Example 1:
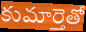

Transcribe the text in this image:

కుమార్తెతో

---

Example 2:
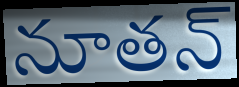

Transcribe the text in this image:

నూతన్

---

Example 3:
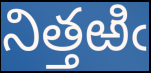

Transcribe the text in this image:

నిత్తఱిఁ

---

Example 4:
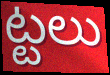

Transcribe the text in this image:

ట్టలు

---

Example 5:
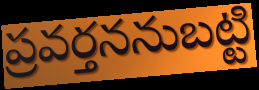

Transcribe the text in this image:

ప్రవర్తననుబట్టి